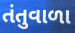
તંતુવાળા